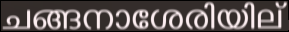
ചങ്ങനാശേരിയില്